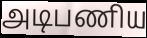
அடிபணிய